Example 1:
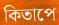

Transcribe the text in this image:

কিতাপে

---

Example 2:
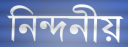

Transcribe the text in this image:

নিন্দনীয়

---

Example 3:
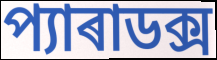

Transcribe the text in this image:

প্যাৰাডক্স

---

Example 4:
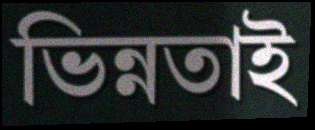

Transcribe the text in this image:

ভিন্নতাই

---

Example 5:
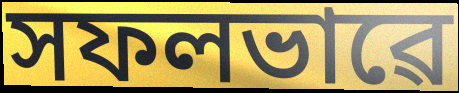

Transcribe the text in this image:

সফলভাৱে